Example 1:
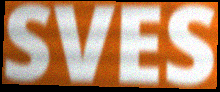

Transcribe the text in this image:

SVES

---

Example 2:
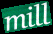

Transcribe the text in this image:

mill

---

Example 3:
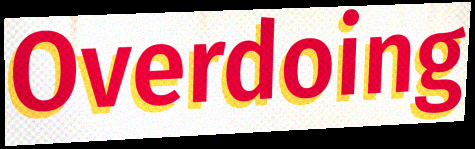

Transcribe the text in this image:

Overdoing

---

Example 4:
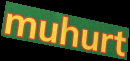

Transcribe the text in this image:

muhurt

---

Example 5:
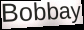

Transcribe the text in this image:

Bobbay